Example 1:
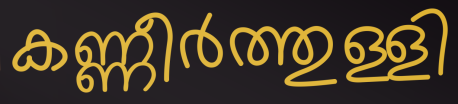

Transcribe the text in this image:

കണ്ണീർത്തുള്ളി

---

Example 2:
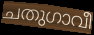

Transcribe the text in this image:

ചതുഗാവീ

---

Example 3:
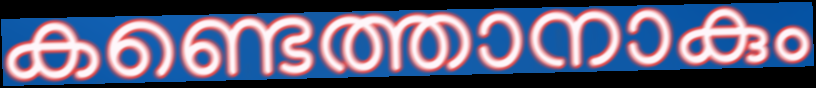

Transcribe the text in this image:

കണ്ടെത്താനാകും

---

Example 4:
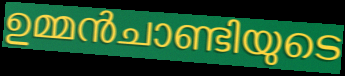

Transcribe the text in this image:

ഉമ്മൻചാണ്ടിയുടെ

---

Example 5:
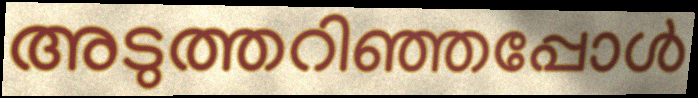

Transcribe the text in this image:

അടുത്തറിഞ്ഞപ്പോൾ